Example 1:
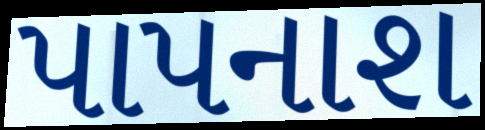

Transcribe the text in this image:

પાપનાશ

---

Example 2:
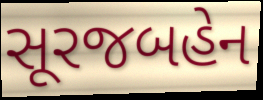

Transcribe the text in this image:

સૂરજબહેન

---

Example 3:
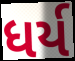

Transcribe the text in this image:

ધર્ય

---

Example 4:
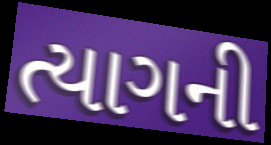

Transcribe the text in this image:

ત્યાગની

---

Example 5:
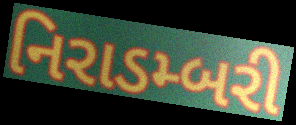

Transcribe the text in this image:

નિરાડમ્બરી